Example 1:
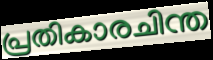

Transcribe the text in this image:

പ്രതികാരചിന്ത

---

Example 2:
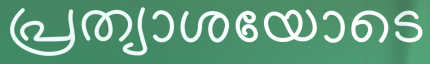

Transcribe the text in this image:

പ്രത്യാശയോടെ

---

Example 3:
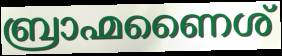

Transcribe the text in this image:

ബ്രാഹ്മണൈശ്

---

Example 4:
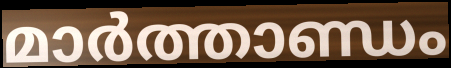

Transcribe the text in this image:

മാർത്താണ്ഡം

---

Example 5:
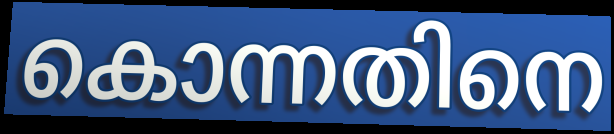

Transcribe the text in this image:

കൊന്നതിനെ